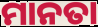
ମାନତା